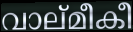
വാല്മീകീ